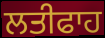
ਲਤੀਫਾਹ